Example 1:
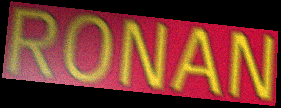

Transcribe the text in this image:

RONAN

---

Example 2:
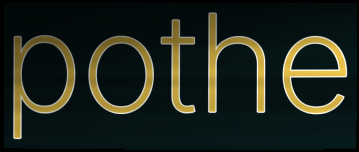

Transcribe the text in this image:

pothe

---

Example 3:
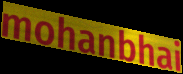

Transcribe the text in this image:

mohanbhai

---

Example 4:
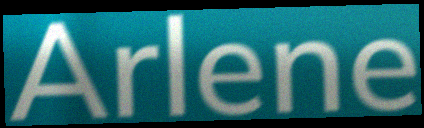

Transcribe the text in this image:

Arlene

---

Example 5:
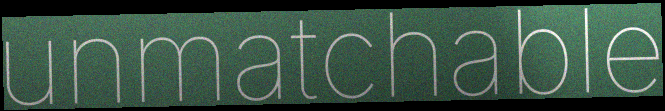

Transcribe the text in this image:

unmatchable